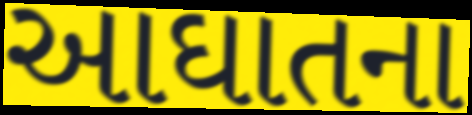
આઘાતના